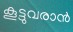
കൂട്ടുവരാൻ